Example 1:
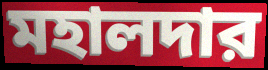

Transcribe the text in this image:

মহালদার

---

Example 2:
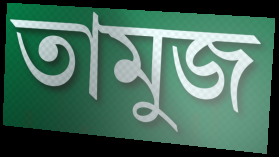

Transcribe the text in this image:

তামুজ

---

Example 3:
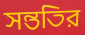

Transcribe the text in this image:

সন্ততির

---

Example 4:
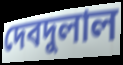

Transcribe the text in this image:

দেবদুলাল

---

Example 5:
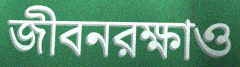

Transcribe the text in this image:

জীবনরক্ষাও